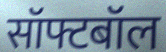
सॉफ्टबॉल